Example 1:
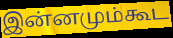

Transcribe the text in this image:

இன்னமும்கூட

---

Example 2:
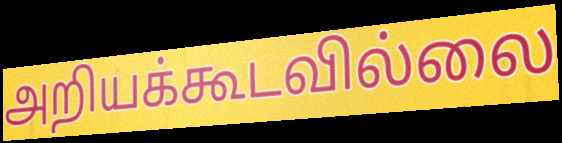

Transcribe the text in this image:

அறியக்கூடவில்லை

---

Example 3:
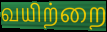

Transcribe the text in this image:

வயிற்றை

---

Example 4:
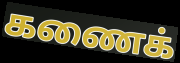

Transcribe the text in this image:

கணைக்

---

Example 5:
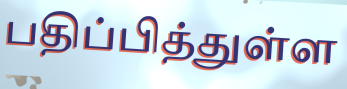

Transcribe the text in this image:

பதிப்பித்துள்ள